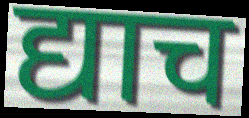
द्याच